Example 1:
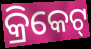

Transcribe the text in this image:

କ୍ରିକେଟ୍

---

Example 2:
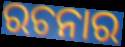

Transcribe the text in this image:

ରଚନାର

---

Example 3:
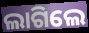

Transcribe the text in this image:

ଲାଗିଲେ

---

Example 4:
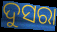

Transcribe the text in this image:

ଦୁସରା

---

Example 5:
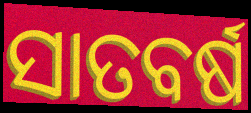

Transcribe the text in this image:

ସାତବର୍ଷ